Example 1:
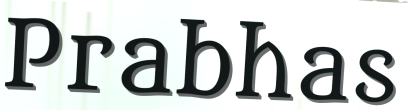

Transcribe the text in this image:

Prabhas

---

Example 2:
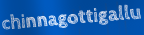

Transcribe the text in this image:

chinnagottigallu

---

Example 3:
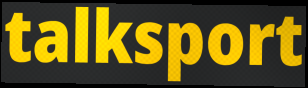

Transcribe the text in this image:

talksport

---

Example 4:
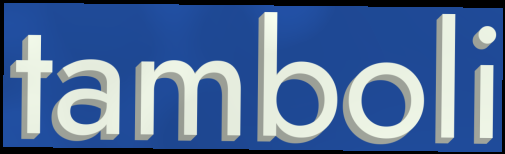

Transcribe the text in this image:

tamboli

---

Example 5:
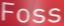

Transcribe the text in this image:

Foss